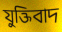
যুক্তিবাদ